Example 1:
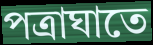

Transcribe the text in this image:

পত্রাঘাতে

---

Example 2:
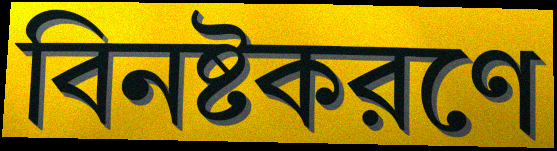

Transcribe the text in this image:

বিনষ্টকরণে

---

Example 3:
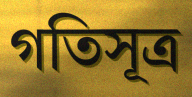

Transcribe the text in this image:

গতিসূত্র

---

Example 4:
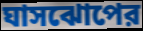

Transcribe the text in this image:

ঘাসঝোপের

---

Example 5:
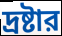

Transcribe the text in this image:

দ্রষ্টার